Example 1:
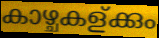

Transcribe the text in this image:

കാഴ്ചകള്ക്കും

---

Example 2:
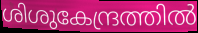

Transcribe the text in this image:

ശിശുകേന്ദ്രത്തിൽ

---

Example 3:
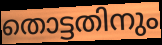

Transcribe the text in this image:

തൊട്ടതിനും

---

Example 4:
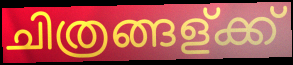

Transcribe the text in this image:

ചിത്രങ്ങള്ക്ക്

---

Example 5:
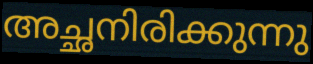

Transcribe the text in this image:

അച്ഛനിരിക്കുന്നു